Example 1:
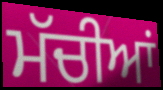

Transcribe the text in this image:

ਮੱਚੀਆਂ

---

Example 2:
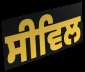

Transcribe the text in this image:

ਸੀਵਿਲ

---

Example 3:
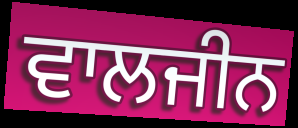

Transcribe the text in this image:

ਵਾਲਜੀਨ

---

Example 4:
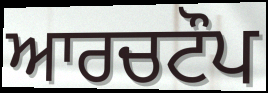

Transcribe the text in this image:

ਆਰਚਟੌਪ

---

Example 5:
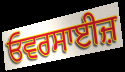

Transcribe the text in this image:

ਓਵਰਸਾਈਜ਼